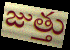
జుత్తు